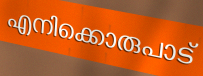
എനിക്കൊരുപാട്